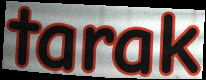
tarak